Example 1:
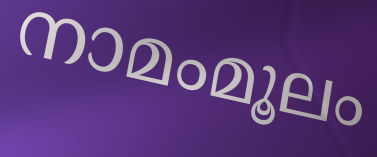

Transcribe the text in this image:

നാമംമൂലം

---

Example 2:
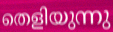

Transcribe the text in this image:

തെളിയുന്നു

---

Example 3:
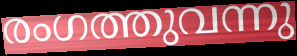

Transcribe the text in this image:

രംഗത്തുവന്നു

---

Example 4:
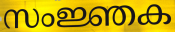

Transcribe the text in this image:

സംജ്ഞക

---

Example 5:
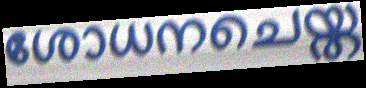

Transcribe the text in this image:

ശോധനചെയ്ത